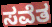
ಸವೆತ